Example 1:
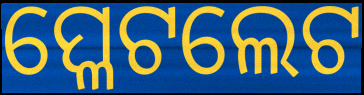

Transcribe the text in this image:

ପ୍ଳେଟଲେଟ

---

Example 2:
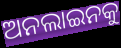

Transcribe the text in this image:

ଅନଲାଇନକୁ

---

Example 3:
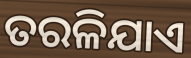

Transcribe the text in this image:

ତରଳିଯାଏ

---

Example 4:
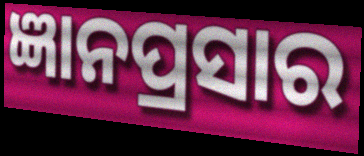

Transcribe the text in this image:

ଜ୍ଞାନପ୍ରସାର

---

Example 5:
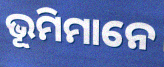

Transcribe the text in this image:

ଭୂମିମାନେ